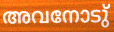
അവനോടു്